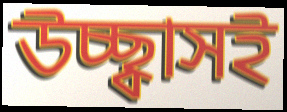
উচ্ছ্বাসই